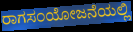
ರಾಗಸಂಯೋಜನೆಯಲ್ಲಿ